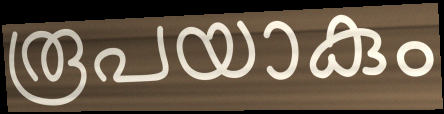
രൂപയാകും